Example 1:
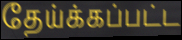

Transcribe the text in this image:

தேய்க்கப்பட்ட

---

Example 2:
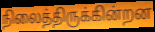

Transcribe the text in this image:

நிலைத்திருக்கின்றன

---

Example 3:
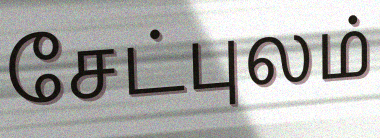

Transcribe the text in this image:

சேட்புலம்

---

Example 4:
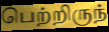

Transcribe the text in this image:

பெற்றிருந்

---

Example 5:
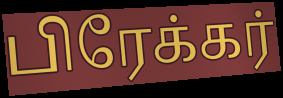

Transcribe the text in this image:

பிரேக்கர்